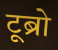
टूब्रो